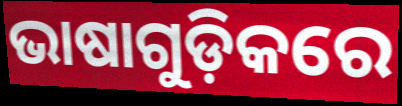
ଭାଷାଗୁଡ଼ିକରେ